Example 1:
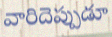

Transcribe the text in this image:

వారిదెప్పుడూ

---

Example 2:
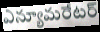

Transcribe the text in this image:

ఎన్యూమరేటర్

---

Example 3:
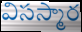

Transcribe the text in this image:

విసస్మార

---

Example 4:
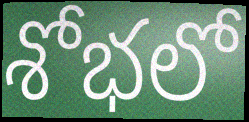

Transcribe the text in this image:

శోభలో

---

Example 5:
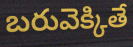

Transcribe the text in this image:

బరువెక్కితే